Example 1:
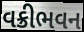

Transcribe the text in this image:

વક્રીભવન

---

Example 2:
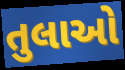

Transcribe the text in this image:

તુલાઓ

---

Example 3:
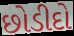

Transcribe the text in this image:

છોડીદો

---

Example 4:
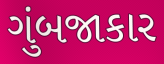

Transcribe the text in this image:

ગુંબજાકાર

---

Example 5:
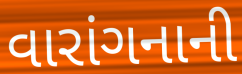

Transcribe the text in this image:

વારાંગનાની